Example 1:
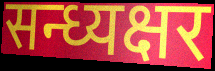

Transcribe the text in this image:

सन्ध्यक्षर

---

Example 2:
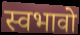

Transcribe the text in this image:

स्वभावो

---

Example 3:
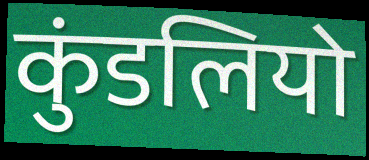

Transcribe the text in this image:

कुंडलियो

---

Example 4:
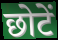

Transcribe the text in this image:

छोटें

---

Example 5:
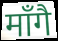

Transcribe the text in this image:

माँगै